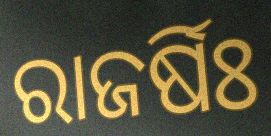
ରାଜର୍ଷିଃ